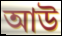
আউ